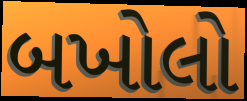
બખોલો